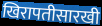
खिरापतीसारखी